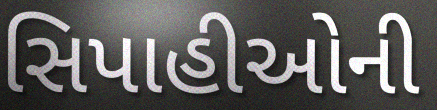
સિપાહીઓની